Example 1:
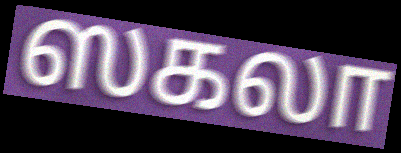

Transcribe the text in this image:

ஸகலா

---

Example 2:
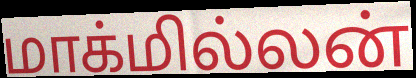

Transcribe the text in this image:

மாக்மில்லன்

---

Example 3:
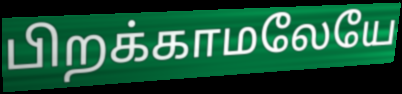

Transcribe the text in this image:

பிறக்காமலேயே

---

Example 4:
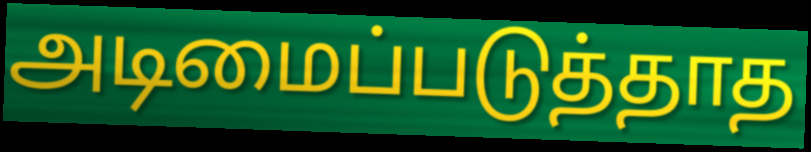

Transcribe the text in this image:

அடிமைப்படுத்தாத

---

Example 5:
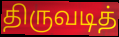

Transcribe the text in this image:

திருவடித்